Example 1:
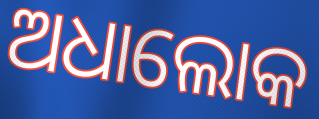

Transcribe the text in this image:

ଅଧାଲୋକ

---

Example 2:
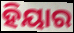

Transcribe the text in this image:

ହିୟାର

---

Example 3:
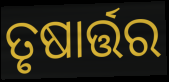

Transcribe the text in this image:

ତୃଷାର୍ତ୍ତର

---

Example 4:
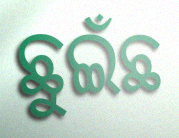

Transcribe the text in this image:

ଛୁଇଁଛ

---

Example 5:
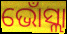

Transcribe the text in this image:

ଭୋଁସ୍ଲା